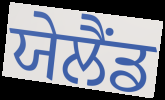
ਯੇਲੈਂਡ